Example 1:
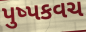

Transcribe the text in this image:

પુષ્પકવચ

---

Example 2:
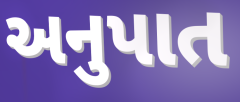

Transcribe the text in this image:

અનુપાત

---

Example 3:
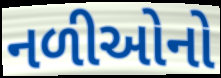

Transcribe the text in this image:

નળીઓનો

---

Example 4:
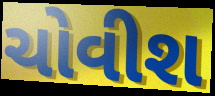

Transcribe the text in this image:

ચોવીશ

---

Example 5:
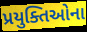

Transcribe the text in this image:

પ્રયુક્તિઓના